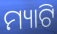
ମ୍ୟାଟି